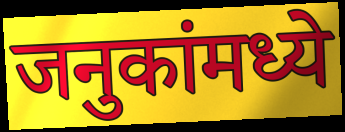
जनुकांमध्ये